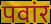
पवांर